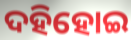
ଦହିହୋଇ